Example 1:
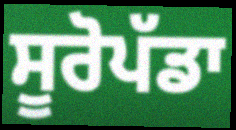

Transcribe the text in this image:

ਸੂਰੋਪੱਡਾ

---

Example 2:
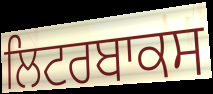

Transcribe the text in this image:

ਲਿਟਰਬਾਕਸ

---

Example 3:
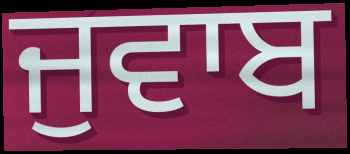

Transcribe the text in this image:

ਜੁਵਾਬ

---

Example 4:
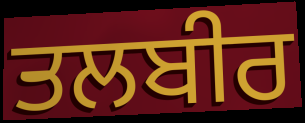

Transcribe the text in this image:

ਤਲਬੀਰ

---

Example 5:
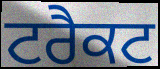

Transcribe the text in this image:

ਟਰੈਕਟ